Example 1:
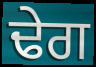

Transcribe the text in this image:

ਢੇਗ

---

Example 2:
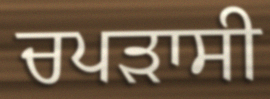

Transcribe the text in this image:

ਚਪੜਾਸੀ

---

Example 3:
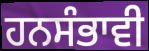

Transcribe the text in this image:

ਹਨਸੰਭਾਵੀ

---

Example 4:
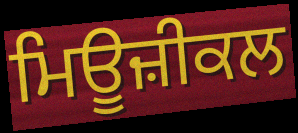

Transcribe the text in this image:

ਮਿਊਜ਼ੀਕਲ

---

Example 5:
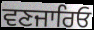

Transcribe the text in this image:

ਵਣਜਾਰਿਓ